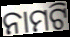
ନାମଟି